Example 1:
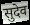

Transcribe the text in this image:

सुदेव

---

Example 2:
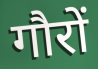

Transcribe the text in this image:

गौरों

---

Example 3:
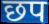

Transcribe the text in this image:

छप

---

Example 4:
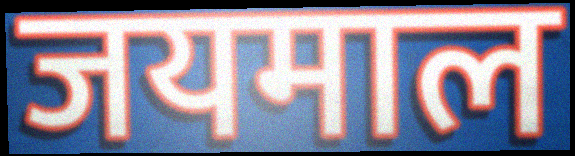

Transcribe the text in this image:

जयमाल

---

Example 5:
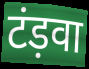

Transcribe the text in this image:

टंड़वा